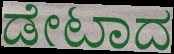
ಡೇಟಾದ